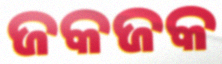
ଜକଜକ